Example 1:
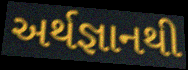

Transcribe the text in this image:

અર્થજ્ઞાનથી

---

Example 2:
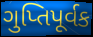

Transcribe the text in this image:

ગુપ્તિપૂર્વક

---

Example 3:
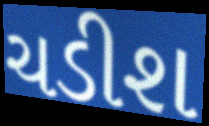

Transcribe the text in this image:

ચડીશ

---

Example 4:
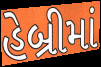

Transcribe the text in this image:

હેબ્રીમાં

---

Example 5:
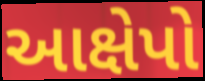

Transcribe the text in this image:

આક્ષેપો